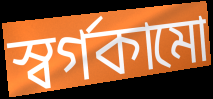
স্বর্গকামো